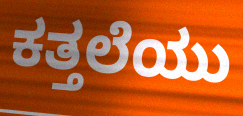
ಕತ್ತಲೆಯು